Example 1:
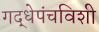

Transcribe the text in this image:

गद्धेपंचविशी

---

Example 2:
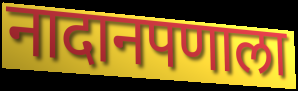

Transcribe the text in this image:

नादानपणाला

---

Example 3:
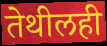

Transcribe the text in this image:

तेथीलही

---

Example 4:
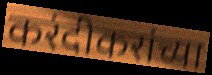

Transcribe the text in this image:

करंदीकरांच्या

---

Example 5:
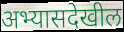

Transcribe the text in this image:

अभ्यासदेखील